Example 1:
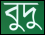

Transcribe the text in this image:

বুদু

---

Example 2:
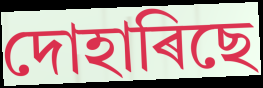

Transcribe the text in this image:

দোহাৰিছে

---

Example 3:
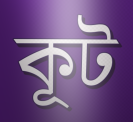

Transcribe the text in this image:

কূট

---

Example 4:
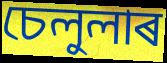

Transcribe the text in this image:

চেলুলাৰ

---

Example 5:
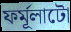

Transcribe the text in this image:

ফৰ্মূলাটো